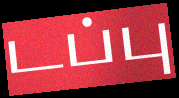
டப்பு